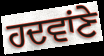
ਹਦਵਾਂਣੇ